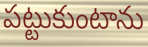
పట్టుకుంటాను